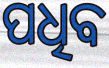
ପଧିବ